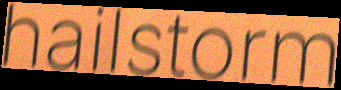
hailstorm